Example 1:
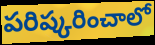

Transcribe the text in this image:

పరిష్కరించాలో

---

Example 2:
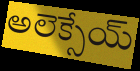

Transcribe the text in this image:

అలెక్సేయ్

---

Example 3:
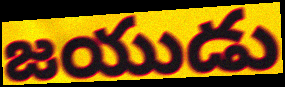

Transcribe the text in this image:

జయుడు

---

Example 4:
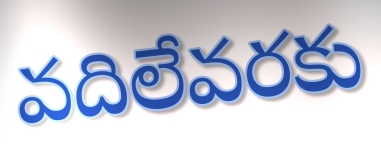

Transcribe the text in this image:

వదిలేవరకు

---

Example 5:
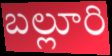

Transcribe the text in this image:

బల్లూరి